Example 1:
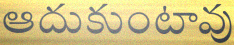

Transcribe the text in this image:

ఆదుకుంటావు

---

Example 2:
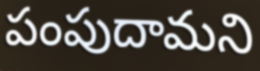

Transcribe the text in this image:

పంపుదామని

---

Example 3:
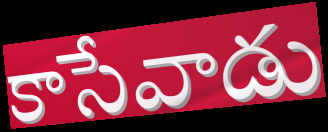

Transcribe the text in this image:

కాసేవాడు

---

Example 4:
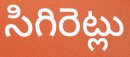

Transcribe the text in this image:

సిగిరెట్లు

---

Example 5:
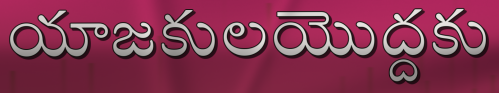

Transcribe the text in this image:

యాజకులయొద్దకు